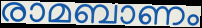
രാമബാണം